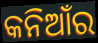
କନିଆଁର